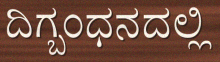
ದಿಗ್ಬಂಧನದಲ್ಲಿ